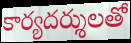
కార్యదర్శులతో